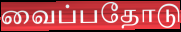
வைப்பதோடு